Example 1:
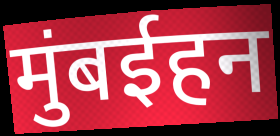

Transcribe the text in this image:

मुंबईहन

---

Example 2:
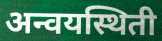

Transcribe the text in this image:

अन्वयस्थिती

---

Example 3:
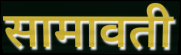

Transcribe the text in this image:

सामावती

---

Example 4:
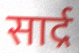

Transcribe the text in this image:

सार्द्र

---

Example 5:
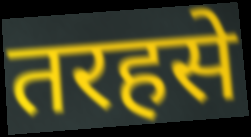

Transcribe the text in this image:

तरहसे